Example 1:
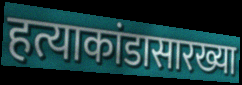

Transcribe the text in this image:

हत्याकांडासारख्या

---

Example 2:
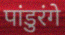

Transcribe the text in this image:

पांडुरंगे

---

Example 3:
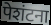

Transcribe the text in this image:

पेशंटना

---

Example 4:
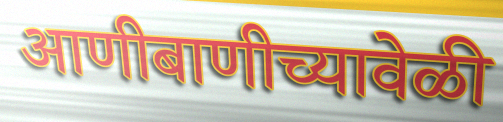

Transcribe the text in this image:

आणीबाणीच्यावेळी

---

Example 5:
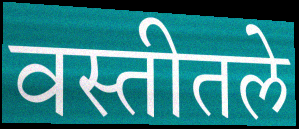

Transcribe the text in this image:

वस्तीतले